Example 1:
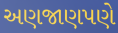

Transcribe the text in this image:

અણજાણપણે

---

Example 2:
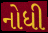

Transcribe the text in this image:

નોધી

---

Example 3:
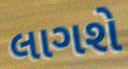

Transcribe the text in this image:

લાગશે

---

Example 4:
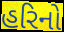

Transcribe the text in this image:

હરિનો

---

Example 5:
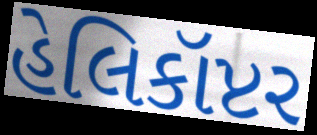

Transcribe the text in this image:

હેલિકૉપ્ટર